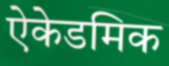
ऐकेडमिक